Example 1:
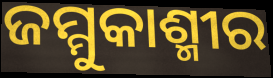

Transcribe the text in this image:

ଜମ୍ମୁକାଶ୍ମୀର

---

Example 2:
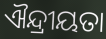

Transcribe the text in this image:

ଐନ୍ଦ୍ରୀୟତା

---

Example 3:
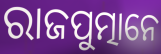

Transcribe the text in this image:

ରାଜପୁତ୍ମାନେ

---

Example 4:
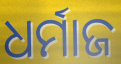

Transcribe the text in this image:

ଧର୍ମାଜ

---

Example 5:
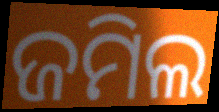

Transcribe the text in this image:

ଜମିଲ